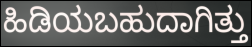
ಹಿಡಿಯಬಹುದಾಗಿತ್ತು